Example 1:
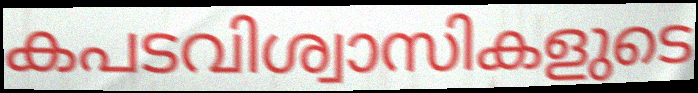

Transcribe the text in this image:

കപടവിശ്വാസികളുടെ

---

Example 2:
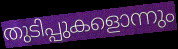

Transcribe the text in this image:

തുടിപ്പുകളൊന്നും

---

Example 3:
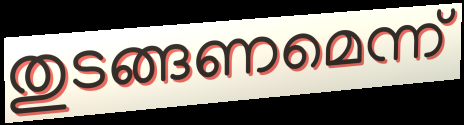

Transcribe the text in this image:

തുടങ്ങണമെന്ന്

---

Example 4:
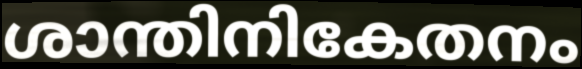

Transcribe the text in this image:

ശാന്തിനികേതനം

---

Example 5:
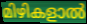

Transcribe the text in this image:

മിഴികളാൽ